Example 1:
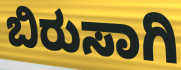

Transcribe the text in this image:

ಬಿರುಸಾಗಿ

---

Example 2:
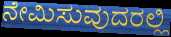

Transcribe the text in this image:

ನೇಮಿಸುವುದರಲ್ಲಿ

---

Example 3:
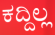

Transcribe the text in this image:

ಕದ್ದಿಲ್ಲ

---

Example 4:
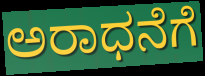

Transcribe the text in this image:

ಅರಾಧನೆಗೆ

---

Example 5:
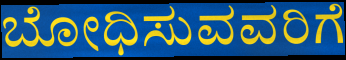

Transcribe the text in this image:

ಬೋಧಿಸುವವರಿಗೆ